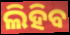
ଲିହିବ